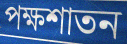
পক্ষশাতন